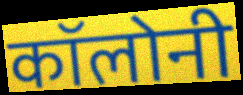
कॉलोनी